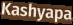
Kashyapa